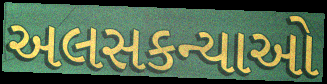
અલસકન્યાઓ